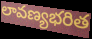
లావణ్యభరిత